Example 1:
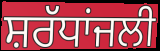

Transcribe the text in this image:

ਸ਼ਰੱਧਾਂਜਲੀ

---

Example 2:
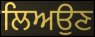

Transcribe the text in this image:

ਲਿਅਉਣ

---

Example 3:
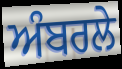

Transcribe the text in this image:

ਅੰਬਰਲੇ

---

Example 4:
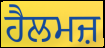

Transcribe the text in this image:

ਹੈਲਮਜ਼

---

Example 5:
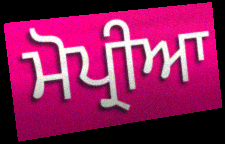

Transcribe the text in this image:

ਮੋਪ੍ਰੀਆ